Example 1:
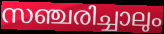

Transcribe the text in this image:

സഞ്ചരിച്ചാലും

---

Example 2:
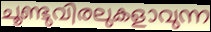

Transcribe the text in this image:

ചൂണ്ടുവിരലുകളാവുന്ന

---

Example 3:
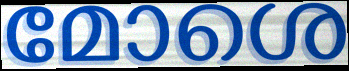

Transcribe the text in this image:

മോശെ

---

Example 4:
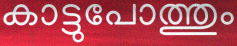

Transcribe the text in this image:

കാട്ടുപോത്തും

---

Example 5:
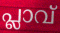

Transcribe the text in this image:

പ്ലാവ്